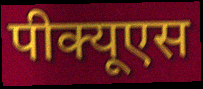
पीक्यूएस